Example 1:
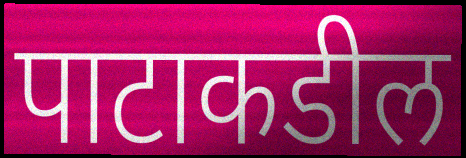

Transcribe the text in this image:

पाटाकडील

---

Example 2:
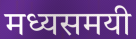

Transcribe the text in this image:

मध्यसमयी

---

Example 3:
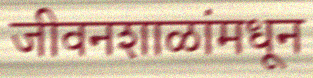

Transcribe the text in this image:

जीवनशाळांमधून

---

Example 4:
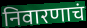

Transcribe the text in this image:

निवारणाचं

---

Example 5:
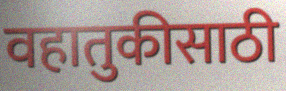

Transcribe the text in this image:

वहातुकीसाठी